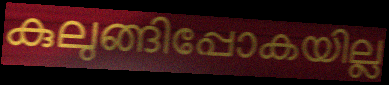
കുലുങ്ങിപ്പോകയില്ല